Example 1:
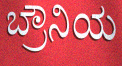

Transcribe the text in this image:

ಬ್ರೌನಿಯ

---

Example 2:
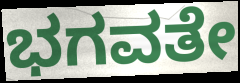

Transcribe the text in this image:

ಭಗವತೇ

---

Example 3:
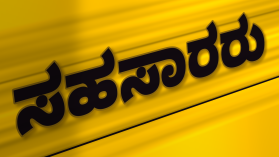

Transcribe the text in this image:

ಸಹಸಾರರು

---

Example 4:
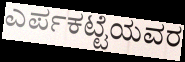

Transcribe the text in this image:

ಎರ್ಪಕಟ್ಟೆಯವರ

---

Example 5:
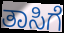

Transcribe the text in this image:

ತಾಸಿಗೆ